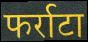
फर्राटा